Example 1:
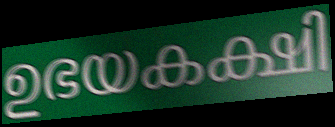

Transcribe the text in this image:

ഉഭയകക്ഷി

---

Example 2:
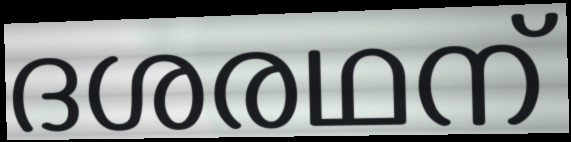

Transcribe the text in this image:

ദശരഥന്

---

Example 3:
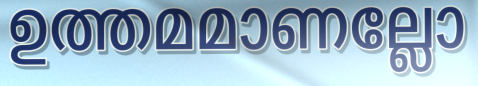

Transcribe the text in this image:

ഉത്തമമാണല്ലോ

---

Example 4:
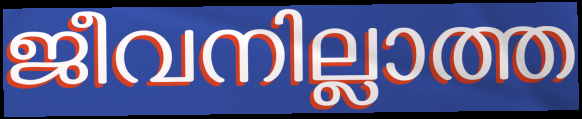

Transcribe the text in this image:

ജീവനില്ലാത്ത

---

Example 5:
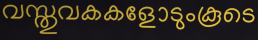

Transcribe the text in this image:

വസ്തുവകകളോടുംകൂടെ